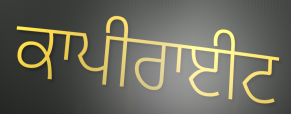
ਕਾਪੀਰਾਈਟ